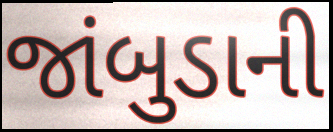
જાંબુડાની